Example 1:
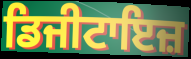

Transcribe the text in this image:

ਡਿਜੀਟਾਇਜ਼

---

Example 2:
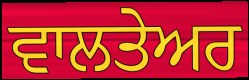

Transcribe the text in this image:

ਵਾਲਤੇਅਰ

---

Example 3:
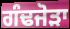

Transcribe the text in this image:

ਗੰਢਜੋੜਾ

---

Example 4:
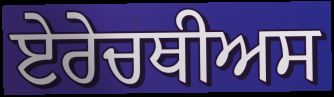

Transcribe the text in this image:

ਏਰੇਚਥੀਅਸ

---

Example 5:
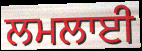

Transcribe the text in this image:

ਲਮਲਾਈ